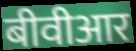
बीवीआर